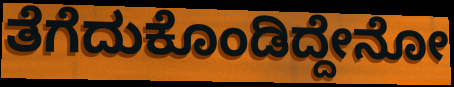
ತೆಗೆದುಕೊಂಡಿದ್ದೇನೋ